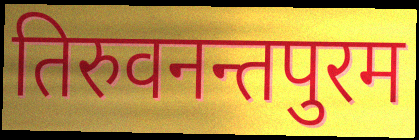
तिरुवनन्तपुरम